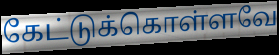
கேட்டுக்கொள்ளவே